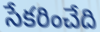
సేకరించేది